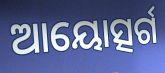
ଆୟୋତ୍ସର୍ଗ